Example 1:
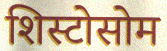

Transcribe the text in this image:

शिस्टोसोम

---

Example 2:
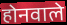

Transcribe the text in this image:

होनवाले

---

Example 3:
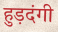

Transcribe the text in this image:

हुड़दंगी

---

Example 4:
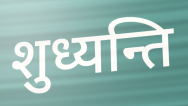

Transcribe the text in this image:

शुध्यन्ति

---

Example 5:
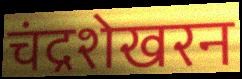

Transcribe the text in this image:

चंद्रशेखरन